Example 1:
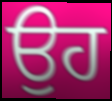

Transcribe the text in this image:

ਉਹ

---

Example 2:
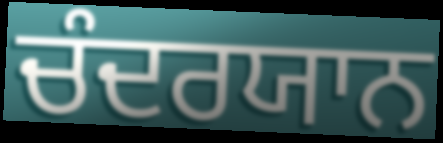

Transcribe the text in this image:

ਚੰਦਰਯਾਨ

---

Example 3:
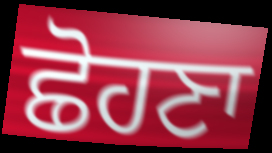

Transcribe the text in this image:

ਛੋਹਣਾ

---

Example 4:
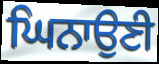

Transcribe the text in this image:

ਘਿਨਾਉਣੀ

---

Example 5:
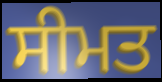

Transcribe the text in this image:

ਸੀਮਤ